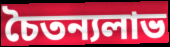
চৈতন্যলাভ